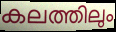
കലത്തിലും